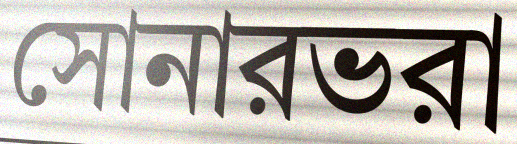
সোনারভরা